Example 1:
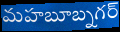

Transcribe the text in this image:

మహబూబ్నగర్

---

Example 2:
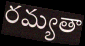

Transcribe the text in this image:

రమ్యతా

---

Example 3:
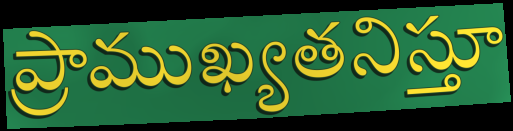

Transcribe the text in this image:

ప్రాముఖ్యతనిస్తూ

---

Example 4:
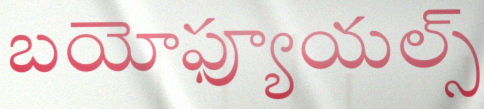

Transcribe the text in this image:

బయోఫ్యూయల్స్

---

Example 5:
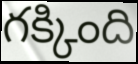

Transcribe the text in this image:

గక్కింది